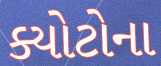
ક્યોટોના